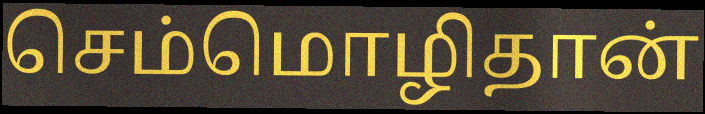
செம்மொழிதான்